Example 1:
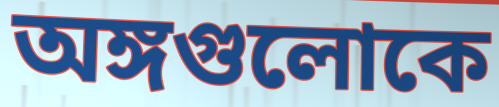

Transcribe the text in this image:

অঙ্গগুলোকে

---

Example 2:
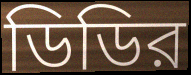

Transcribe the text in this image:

ডিডির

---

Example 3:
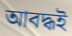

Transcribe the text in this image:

আবদ্ধই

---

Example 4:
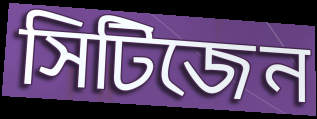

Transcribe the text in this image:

সিটিজেন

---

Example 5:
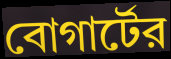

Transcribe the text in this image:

বোগার্টের